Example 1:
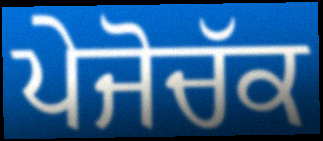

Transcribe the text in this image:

ਪੇਜੋਚੱਕ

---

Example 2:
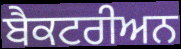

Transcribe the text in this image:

ਬੈਕਟਰੀਅਨ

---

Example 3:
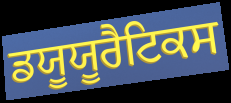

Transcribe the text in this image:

ਡਯੂਯੂਰੈਟਿਕਸ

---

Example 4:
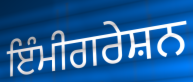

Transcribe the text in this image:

ਇੰਮੀਗਰੇਸ਼ਨ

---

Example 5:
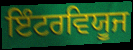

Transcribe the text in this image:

ਇੰਟਰਵਿਯੂਜ